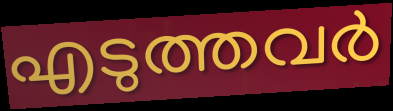
എടുത്തവർ